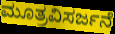
ಮೂತ್ರವಿಸರ್ಜನೆ